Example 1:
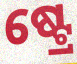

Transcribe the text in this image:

ଷ୍ଟ୍ରେ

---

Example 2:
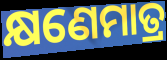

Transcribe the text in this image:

କ୍ଷଣେମାତ୍ର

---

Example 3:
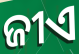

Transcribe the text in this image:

ଜୀଏ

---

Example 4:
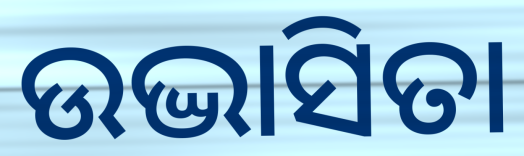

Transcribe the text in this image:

ଉଦ୍ଭାସିତା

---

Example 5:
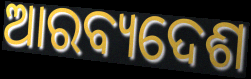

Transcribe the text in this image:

ଆରବ୍ୟଦେଶ